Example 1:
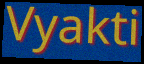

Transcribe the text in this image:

Vyakti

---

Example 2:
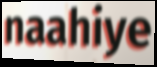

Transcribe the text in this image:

naahiye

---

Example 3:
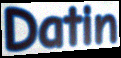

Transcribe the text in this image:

Datin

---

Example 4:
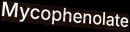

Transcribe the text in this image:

Mycophenolate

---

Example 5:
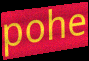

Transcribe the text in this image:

pohe